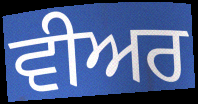
ਵੀਅਰ